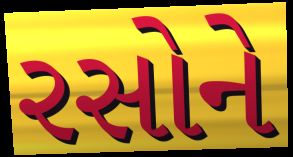
રસોને